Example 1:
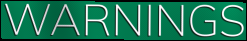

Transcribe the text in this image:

WARNINGS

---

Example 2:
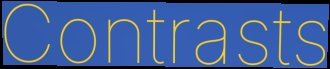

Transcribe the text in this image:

Contrasts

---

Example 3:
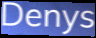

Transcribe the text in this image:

Denys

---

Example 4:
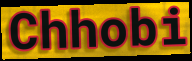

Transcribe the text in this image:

Chhobi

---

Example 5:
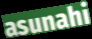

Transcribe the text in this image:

asunahi